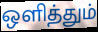
ஒளித்தும்